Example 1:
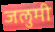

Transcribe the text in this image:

जलुमी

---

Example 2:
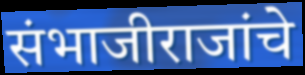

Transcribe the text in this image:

संभाजीराजांचे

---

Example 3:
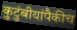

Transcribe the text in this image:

कुटुंबीयांपैकीच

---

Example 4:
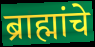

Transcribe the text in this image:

ब्राह्मांचे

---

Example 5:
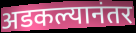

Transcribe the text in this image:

अडकल्यानंतर